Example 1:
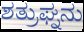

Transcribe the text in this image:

ಶತ್ರುಘ್ನನು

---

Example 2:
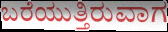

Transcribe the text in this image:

ಬರೆಯುತ್ತಿರುವಾಗ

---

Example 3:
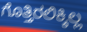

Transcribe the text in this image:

ಗೊತ್ತಿರಲಿಕ್ಕಿಲ್ಲ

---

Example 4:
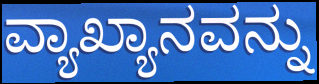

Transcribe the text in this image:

ವ್ಯಾಖ್ಯಾನವನ್ನು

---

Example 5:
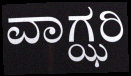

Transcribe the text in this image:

ವಾಗ್ಝರಿ